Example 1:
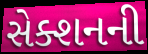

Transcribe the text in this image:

સેક્શનની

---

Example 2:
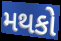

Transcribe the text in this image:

મથકો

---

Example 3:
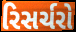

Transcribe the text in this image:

રિસર્ચરો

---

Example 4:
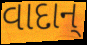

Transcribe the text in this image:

વાદાન્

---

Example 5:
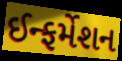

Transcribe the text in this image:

ઈન્ફર્મેશન